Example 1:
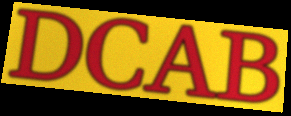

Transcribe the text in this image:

DCAB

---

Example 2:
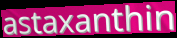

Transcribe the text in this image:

astaxanthin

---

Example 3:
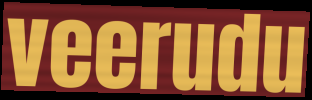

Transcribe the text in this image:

veerudu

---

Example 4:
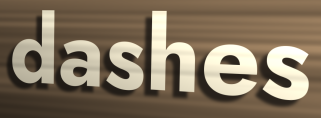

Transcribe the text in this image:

dashes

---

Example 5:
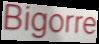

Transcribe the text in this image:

Bigorre